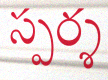
స్పర్శ